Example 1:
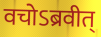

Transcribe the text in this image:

वचोऽब्रवीत्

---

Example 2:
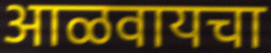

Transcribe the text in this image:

आळवायचा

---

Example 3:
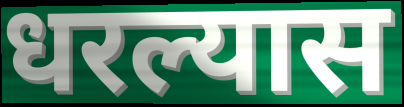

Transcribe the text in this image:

धरल्यास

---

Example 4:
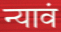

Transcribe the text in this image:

न्यावं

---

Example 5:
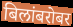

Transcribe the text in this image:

बिलांबरोबर